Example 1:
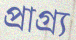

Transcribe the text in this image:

প্রাগ্র্য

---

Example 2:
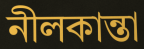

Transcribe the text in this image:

নীলকান্তা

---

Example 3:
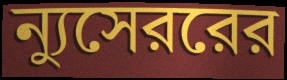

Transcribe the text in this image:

ন্যুসেররের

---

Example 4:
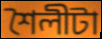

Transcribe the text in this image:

শৈলীটা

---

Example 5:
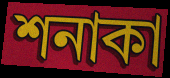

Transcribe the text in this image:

শনাকা